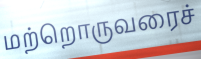
மற்றொருவரைச்